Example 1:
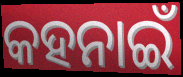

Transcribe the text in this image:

କହନାଇଁ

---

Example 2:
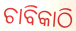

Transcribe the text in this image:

ଚାବିକାଠି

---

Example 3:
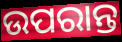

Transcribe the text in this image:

ଉପରାନ୍ତ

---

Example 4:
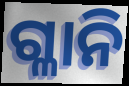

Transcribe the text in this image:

ଗ୍ଳାନି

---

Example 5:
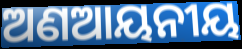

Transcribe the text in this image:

ଅଣଆୟନୀୟ